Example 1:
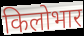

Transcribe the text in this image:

किलोभार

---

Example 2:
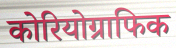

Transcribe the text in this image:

कोरियोग्राफिक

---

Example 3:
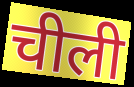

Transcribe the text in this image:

चीली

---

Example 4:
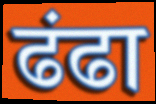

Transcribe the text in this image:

ढंढा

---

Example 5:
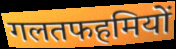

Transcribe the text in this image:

गलतफहमियों